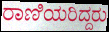
ರಾಣಿಯರಿದ್ದರು